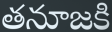
తనూజకి